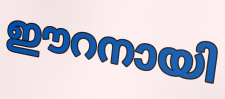
ഈറനായി